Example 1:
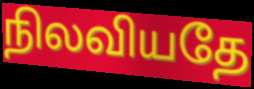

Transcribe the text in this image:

நிலவியதே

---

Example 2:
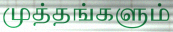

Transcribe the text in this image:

முத்தங்களும்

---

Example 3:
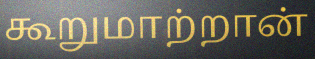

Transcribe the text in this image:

கூறுமாற்றான்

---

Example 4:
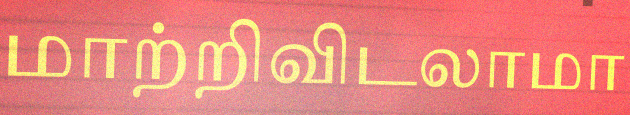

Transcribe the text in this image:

மாற்றிவிடலாமா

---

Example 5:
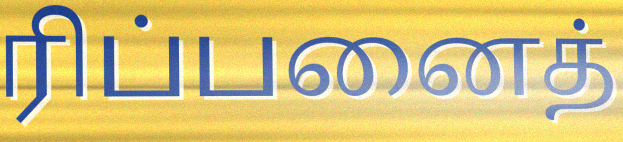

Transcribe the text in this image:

ரிப்பனைத்